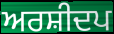
ਅਰਸ਼ੀਦਪ